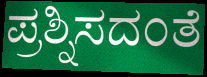
ಪ್ರಶ್ನಿಸದಂತೆ